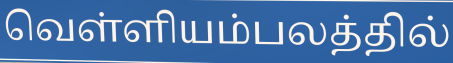
வெள்ளியம்பலத்தில்